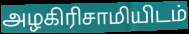
அழகிரிசாமியிடம்